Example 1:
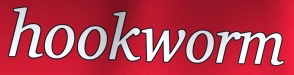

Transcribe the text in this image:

hookworm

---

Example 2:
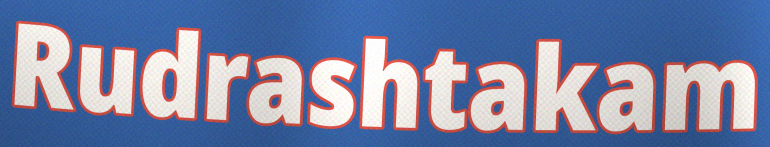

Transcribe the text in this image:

Rudrashtakam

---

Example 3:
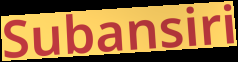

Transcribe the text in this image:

Subansiri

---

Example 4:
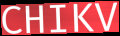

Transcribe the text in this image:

CHIKV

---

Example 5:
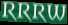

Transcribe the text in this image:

RRRW